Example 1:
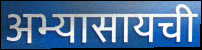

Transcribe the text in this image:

अभ्यासायची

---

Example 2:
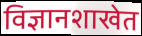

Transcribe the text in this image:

विज्ञानशाखेत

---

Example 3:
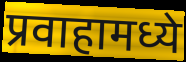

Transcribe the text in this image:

प्रवाहामध्ये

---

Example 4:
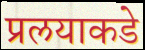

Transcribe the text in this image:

प्रलयाकडे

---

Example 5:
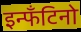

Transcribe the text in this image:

इन्फँटिनो